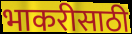
भाकरीसाठी